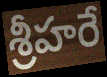
శ్రీహరే